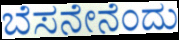
ಬೆಸನೇನೆಂದು